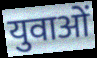
युवाओं